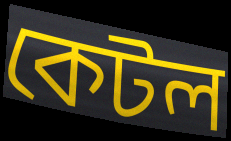
কেটল